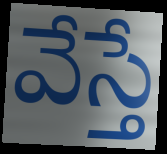
వేస్తే